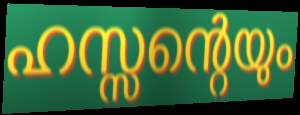
ഹസ്സന്റെയും